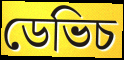
ডেভিচ